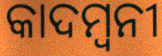
କାଦମ୍ୱନୀ